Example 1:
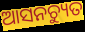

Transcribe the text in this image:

ଆସନଚ୍ୟୁତ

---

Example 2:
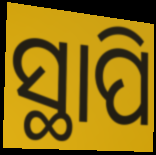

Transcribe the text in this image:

ସ୍ଥାପି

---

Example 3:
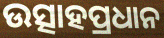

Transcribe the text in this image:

ଉତ୍ସାହପ୍ରଧାନ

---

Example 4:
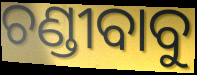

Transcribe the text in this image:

ଚଣ୍ଡୀବାବୁ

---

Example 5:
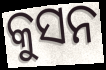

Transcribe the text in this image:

କୁସନ